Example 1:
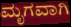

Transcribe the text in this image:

ಮೃಗವಾಗಿ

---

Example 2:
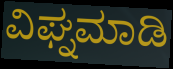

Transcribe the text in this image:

ವಿಘ್ನಮಾಡಿ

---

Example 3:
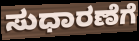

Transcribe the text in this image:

ಸುಧಾರಣೆಗೆ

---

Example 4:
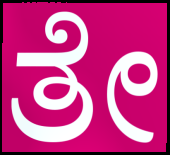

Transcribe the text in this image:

ತೇ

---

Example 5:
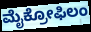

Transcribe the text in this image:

ಮೈಕ್ರೋಫಿಲಂ